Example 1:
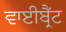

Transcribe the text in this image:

ਵਾਈਬ੍ਰੈਂਟ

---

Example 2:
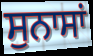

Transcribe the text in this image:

ਸੁਨਾਸਾਂ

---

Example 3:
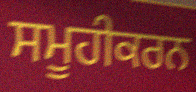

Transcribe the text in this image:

ਸਮੂਹੀਕਰਨ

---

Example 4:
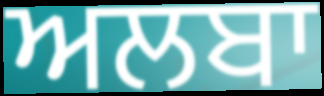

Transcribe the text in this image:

ਅਲਬਾ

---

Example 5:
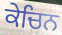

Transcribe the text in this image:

ਕੇਚਿਨ